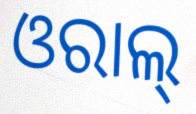
ଓରାଲ୍